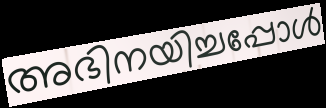
അഭിനയിച്ചപ്പോൾ